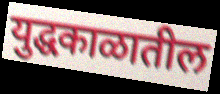
युद्धकाळातील